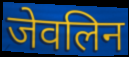
जेवलिन